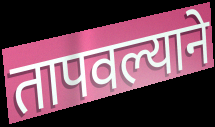
तापवल्याने